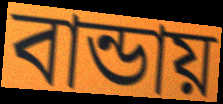
বান্ডায়